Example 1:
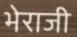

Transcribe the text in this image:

भेराजी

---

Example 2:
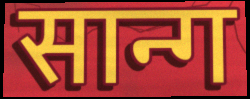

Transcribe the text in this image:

सान्ग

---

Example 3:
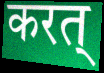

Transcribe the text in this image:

करत्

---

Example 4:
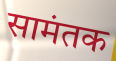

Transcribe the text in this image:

सामंतक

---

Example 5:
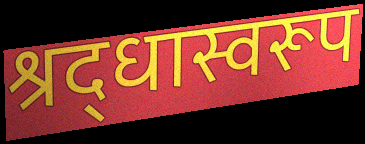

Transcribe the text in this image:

श्रद्धास्वरूप